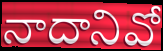
నాదానివో